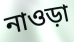
নাওড়া